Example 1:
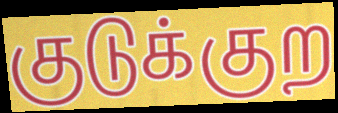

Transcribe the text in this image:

குடுக்குற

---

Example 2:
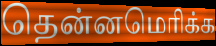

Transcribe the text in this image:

தென்னமெரிக்க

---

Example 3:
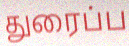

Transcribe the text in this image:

துரைப்ப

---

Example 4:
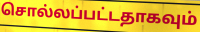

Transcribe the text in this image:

சொல்லப்பட்டதாகவும்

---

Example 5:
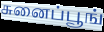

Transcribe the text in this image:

சுனைப்பூங்